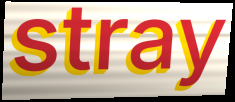
stray